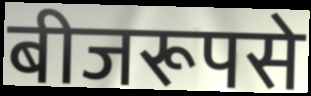
बीजरूपसे